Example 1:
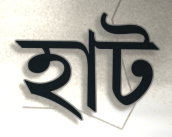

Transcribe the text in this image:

হাট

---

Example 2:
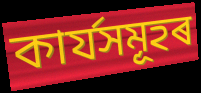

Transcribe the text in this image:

কাৰ্যসমূহৰ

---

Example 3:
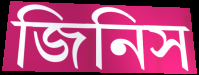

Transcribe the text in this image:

জিনিস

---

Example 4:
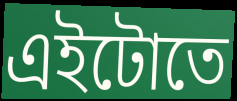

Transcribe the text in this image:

এইটোতে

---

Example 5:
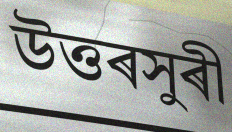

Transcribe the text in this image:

উত্তৰসুৰী